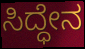
ಸಿದ್ಧೇನ